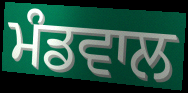
ਮੰਡਵਾਲ